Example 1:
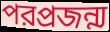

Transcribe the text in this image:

পরপ্রজন্ম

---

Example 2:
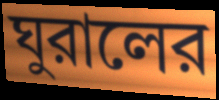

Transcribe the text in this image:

ঘুরালের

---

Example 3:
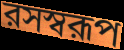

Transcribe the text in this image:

রসস্বরূপ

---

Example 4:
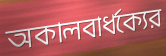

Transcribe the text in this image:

অকালবার্ধক্যের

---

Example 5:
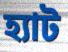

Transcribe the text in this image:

হ্যাট